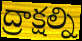
ద్రాక్షల్ని